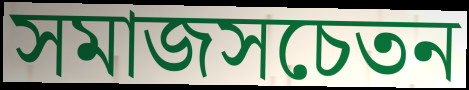
সমাজসচেতন